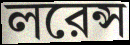
লরেন্স